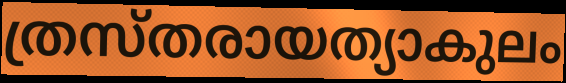
ത്രസ്തരായത്യാകുലം